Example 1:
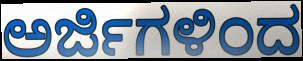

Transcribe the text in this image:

ಅರ್ಜಿಗಳಿಂದ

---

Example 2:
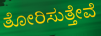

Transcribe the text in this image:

ತೋರಿಸುತ್ತೇವೆ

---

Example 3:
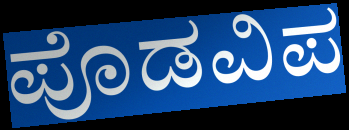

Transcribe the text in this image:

ಪೊಡವಿಪ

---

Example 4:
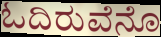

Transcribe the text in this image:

ಓದಿರುವೆನೊ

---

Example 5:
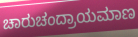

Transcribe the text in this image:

ಚಾರುಚಂದ್ರಾಯಮಾಣ